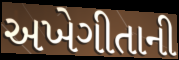
અખેગીતાની